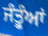
ਜੰਤੂੰਆਂ